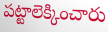
పట్టాలెక్కించారు